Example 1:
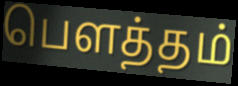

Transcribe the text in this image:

பௌத்தம்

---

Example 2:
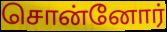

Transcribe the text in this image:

சொன்னோர்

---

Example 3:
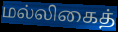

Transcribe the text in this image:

மல்லிகைத்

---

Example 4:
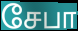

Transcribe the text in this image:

சேபா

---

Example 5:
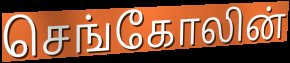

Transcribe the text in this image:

செங்கோலின்